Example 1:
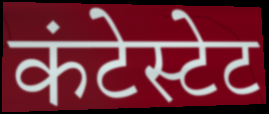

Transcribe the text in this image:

कंटेस्टेट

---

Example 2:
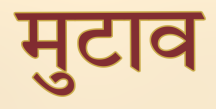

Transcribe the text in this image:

मुटाव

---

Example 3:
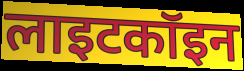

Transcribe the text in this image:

लाइटकॉइन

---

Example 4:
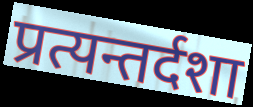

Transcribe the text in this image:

प्रत्यन्तर्दशा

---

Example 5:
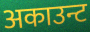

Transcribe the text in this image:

अकाउन्ट